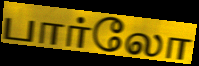
பார்லோ